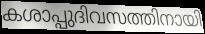
കശാപ്പുദിവസത്തിനായി